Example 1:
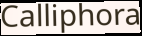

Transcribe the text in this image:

Calliphora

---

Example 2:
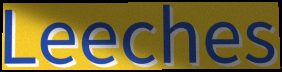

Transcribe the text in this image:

Leeches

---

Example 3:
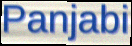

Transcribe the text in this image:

Panjabi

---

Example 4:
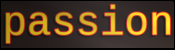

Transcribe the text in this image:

passion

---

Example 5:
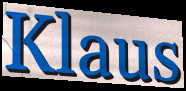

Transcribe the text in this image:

Klaus